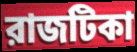
রাজটিকা